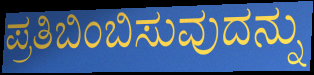
ಪ್ರತಿಬಿಂಬಿಸುವುದನ್ನು